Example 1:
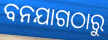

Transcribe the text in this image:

ବନଯାଗଠାରୁ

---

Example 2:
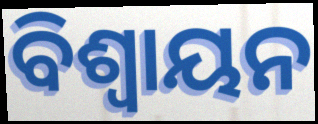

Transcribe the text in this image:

ବିଶ୍ଵାୟନ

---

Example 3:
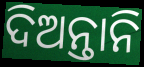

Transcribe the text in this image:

ଦିଅନ୍ତାନି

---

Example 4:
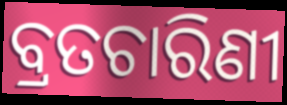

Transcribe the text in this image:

ବ୍ରତଚାରିଣୀ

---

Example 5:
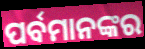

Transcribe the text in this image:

ପର୍ବମାନଙ୍କର